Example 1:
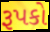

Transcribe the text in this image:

રૂપકો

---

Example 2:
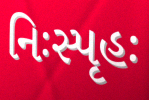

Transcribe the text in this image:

નિઃસ્પૃહઃ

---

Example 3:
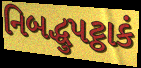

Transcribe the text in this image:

નિબદ્ધુપટ્ઠાકં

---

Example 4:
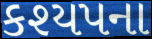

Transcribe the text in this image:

કશ્યપના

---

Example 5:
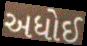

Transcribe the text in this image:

અધોઈ